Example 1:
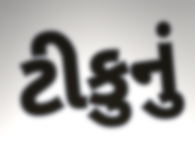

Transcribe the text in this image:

ટીકુનું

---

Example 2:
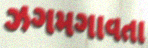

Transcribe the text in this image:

ઝગમગાવતા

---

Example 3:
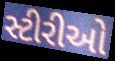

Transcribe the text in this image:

સ્ટીરીઓ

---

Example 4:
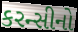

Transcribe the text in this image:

કરન્સીનો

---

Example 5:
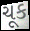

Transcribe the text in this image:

ચૂક